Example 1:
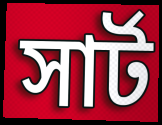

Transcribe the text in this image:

সার্ট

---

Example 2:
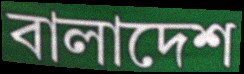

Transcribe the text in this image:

বালাদেশ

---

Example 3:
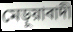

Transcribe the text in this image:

মেড়ুয়াবাদী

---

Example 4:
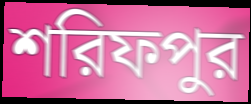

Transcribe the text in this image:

শরিফপুর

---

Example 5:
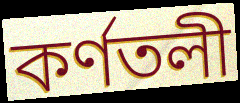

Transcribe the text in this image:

কর্ণতলী